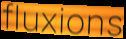
fluxions